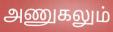
அணுகலும்